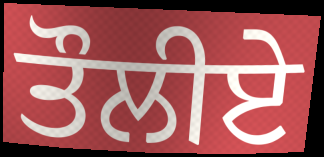
ਤੌਲੀਏ